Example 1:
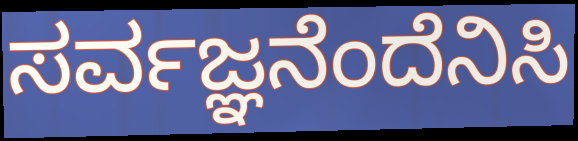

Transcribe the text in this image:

ಸರ್ವಜ್ಞನೆಂದೆನಿಸಿ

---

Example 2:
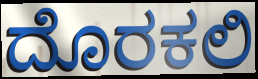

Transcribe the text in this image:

ದೊರಕಲಿ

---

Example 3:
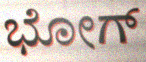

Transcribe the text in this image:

ಭೋಗ್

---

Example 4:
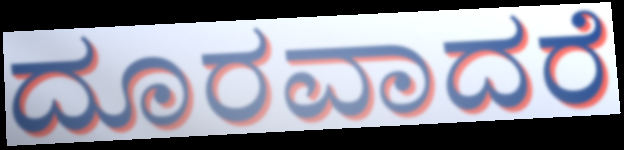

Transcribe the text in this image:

ದೂರವಾದರೆ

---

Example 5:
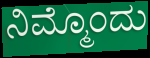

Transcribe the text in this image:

ನಿಮ್ಮೊಂದು